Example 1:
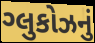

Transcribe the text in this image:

ગ્લુકોઝનું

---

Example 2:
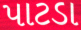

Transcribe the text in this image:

પાટડા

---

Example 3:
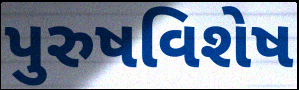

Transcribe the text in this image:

પુરુષવિશેષ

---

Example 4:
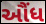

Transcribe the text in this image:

ઔંધ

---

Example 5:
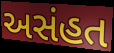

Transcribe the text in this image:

અસંહત